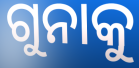
ଗୁନାକୁ